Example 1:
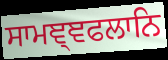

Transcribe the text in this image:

ਸਾਮਞ੍ਞਫਲਾਨਿ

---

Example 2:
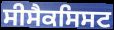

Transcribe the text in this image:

ਸੀਸੈਕਸਿਸਟ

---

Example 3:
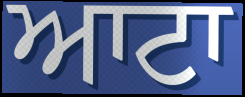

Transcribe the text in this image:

ਆਟਾ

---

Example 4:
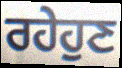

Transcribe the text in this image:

ਰਹੇਹੁਣ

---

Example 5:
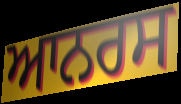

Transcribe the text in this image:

ਆਨਰਸ